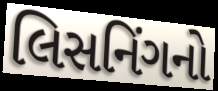
લિસનિંગનો